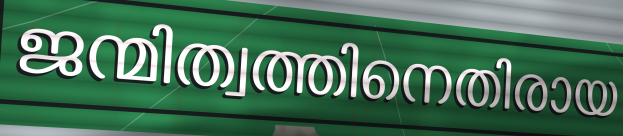
ജന്മിത്വത്തിനെതിരായ